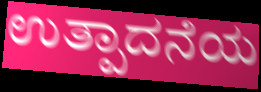
ಉತ್ಪಾದನೆಯ